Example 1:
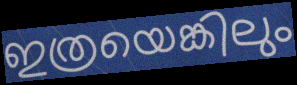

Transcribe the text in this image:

ഇത്രയെങ്കിലും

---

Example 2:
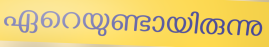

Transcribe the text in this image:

ഏറെയുണ്ടായിരുന്നു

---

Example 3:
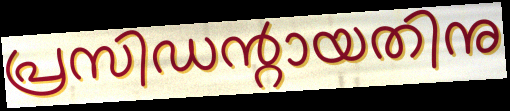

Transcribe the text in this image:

പ്രസിഡന്റായതിനു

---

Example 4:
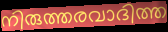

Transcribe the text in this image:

നിരുത്തരവാദിത്ത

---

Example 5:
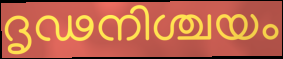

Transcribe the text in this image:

ദൃഢനിശ്ചയം